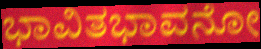
ಭಾವಿತಭಾವನೋ